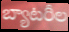
బ్యాటరీల